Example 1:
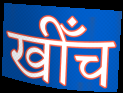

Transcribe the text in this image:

खीँच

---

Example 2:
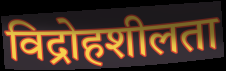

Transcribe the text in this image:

विद्रोहशीलता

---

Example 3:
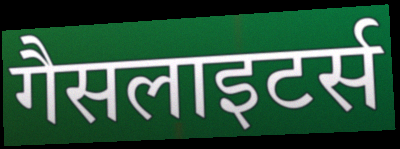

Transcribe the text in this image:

गैसलाइटर्स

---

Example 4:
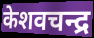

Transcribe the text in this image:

केशवचन्द्र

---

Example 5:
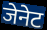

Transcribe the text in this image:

जेनेट